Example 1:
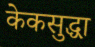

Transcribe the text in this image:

केकसुद्धा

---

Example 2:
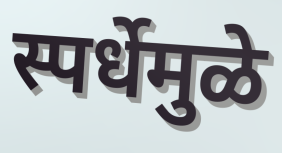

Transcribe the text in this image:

स्पर्धेमुळे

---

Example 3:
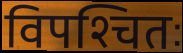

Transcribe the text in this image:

विपश्चितः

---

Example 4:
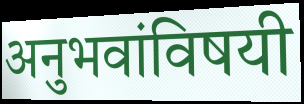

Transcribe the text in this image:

अनुभवांविषयी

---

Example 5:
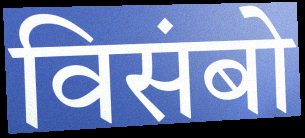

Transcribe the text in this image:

विसंबो